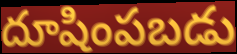
దూషింపబడు